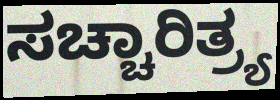
ಸಚ್ಚಾರಿತ್ರ್ಯ